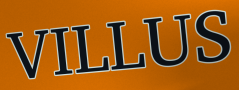
VILLUS